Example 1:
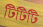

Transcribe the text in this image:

টিটিটি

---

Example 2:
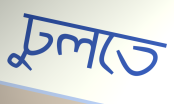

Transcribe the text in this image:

ঢুলতে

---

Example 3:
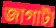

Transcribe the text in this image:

জাগাটা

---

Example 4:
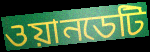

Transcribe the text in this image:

ওয়ানডেটি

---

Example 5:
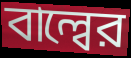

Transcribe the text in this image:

বাল্বের